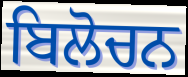
ਬਿਲੋਚਨ